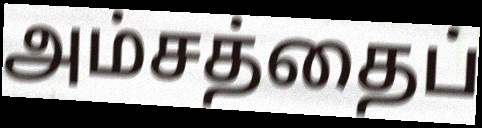
அம்சத்தைப்